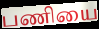
பணியை